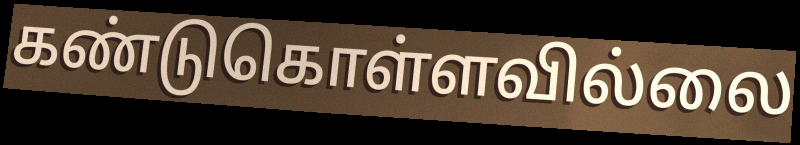
கண்டுகொள்ளவில்லை